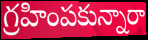
గ్రహింపకున్నారా